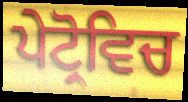
ਪੇਟ੍ਰੋਵਿਚ